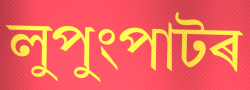
লুপুংপাটৰ